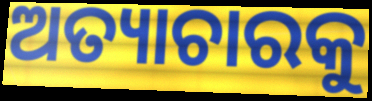
ଅତ୍ୟାଚାରକୁ